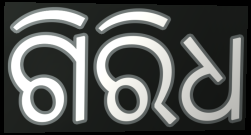
ଗିରିଧ